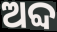
ଅବ୍ଦ